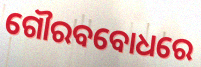
ଗୌରବବୋଧରେ